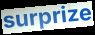
surprize